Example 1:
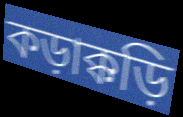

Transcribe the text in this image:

কড়াক্কড়ি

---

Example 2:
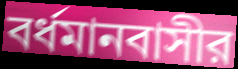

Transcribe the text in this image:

বর্ধমানবাসীর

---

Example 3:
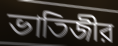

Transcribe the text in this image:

ভাতিজীর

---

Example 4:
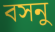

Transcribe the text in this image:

বসনু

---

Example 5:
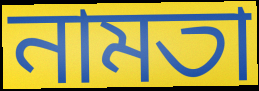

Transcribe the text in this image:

নামতা